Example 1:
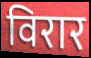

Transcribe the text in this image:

विरार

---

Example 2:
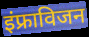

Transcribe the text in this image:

इंफ्राविजन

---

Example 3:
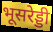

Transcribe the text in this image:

भूसरेड्डी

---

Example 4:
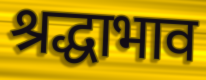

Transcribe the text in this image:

श्रद्धाभाव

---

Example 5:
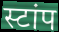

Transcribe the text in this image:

स्टांप